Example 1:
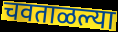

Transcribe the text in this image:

चवताळल्या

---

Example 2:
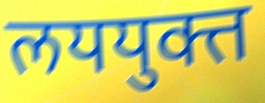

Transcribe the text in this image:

लययुक्त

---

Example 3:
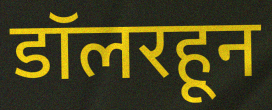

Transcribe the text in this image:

डॉलरहून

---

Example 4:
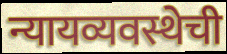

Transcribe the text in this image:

न्यायव्यवस्थेची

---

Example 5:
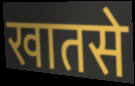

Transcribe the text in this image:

खातसे